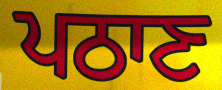
ਪਠਾਣ